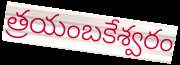
త్రయంబకేశ్వరం